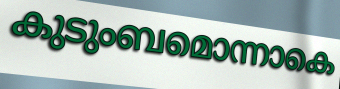
കുടുംബമൊന്നാകെ